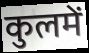
कुलमें